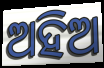
ଅହିଅ